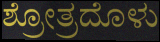
ಶ್ರೋತ್ರದೊಳು